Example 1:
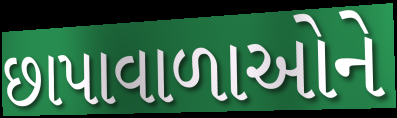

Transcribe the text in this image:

છાપાવાળાઓને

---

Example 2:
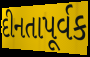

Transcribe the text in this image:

દીનતાપૂર્વક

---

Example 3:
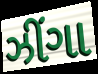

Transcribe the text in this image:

ઝીંગા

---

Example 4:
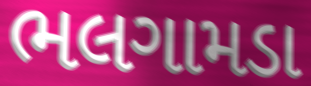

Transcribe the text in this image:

ભલગામડા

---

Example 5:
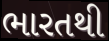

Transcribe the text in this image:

ભારતથી